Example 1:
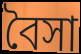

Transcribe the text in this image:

বৈসা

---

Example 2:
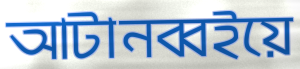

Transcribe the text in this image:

আটানব্বইয়ে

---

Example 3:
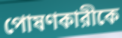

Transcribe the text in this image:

পোষণকারীকে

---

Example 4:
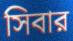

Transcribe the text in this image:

সিবার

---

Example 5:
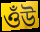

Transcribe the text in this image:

ওঁউ